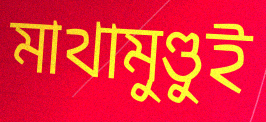
মাথামুণ্ডুই